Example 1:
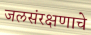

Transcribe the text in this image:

जलसंरक्षणाचे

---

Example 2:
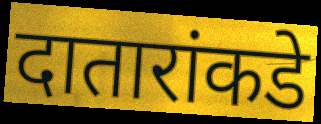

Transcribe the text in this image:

दातारांकडे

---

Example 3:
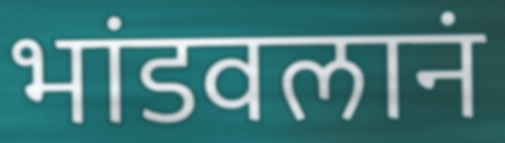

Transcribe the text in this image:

भांडवलानं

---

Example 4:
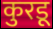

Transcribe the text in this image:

कुरडू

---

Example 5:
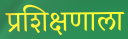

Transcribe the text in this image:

प्रशिक्षणाला